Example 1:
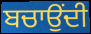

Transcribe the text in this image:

ਬਚਾਉਂਦੀ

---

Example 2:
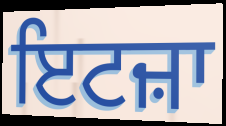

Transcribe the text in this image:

ਇਟਜ਼ਾ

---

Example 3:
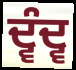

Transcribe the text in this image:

ਦ੍ਵੰਦ੍ਵ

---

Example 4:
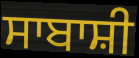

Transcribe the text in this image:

ਸਾਬਾਸ਼ੀ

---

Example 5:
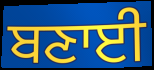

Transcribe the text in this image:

ਬਣਾਈ